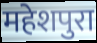
महेशपुरा